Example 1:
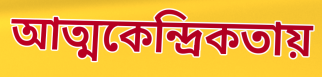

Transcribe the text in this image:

আত্মকেন্দ্রিকতায়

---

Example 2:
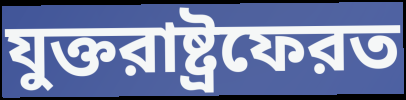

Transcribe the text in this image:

যুক্তরাষ্ট্রফেরত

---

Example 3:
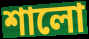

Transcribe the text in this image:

শালো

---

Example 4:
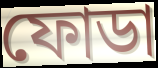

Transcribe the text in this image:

ফোডা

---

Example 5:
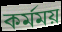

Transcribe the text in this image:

কর্মময়